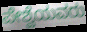
ಪೇಶ್ವೆಯವರು